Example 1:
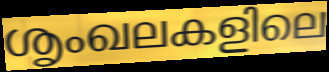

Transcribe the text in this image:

ശൃംഖലകളിലെ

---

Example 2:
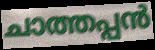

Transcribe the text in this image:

ചാത്തപ്പൻ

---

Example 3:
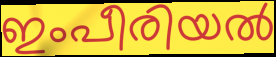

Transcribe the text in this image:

ഇംപീരിയൽ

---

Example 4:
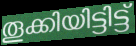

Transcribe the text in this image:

തൂക്കിയിട്ടിട്ട്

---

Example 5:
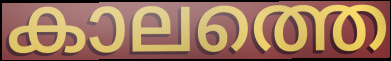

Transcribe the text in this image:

കാലത്തെ